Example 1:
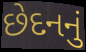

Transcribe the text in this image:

છેદનનું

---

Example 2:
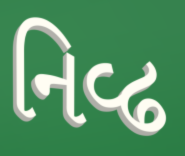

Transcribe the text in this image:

નિવ્ઢ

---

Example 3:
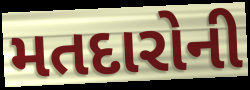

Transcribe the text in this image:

મતદારોની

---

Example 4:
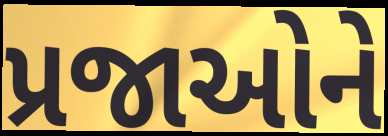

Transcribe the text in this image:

પ્રજાઓને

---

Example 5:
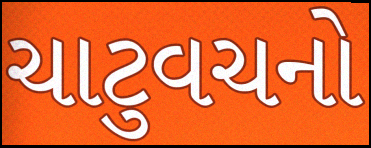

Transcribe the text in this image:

ચાટુવચનો